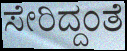
ಸೇರಿದ್ದಂತೆ